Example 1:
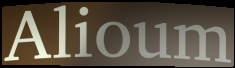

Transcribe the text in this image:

Alioum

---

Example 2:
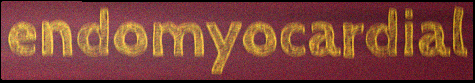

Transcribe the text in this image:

endomyocardial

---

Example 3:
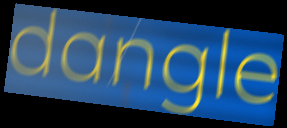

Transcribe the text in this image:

dangle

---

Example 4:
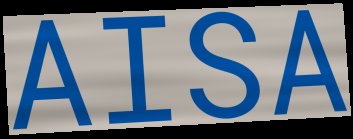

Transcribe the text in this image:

AISA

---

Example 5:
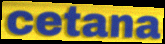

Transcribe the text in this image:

cetana